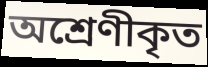
অশ্ৰেণীকৃত